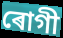
ৰোগী